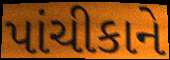
પાંચીકાને